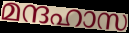
മന്ദഹാസ